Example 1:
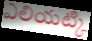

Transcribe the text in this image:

ఎలియట్కి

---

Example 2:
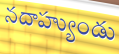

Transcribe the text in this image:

నదాహ్యుండు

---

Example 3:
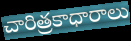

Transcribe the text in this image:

చారిత్రకాధారాలు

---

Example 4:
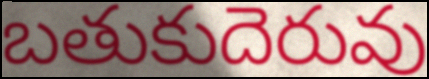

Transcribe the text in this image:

బతుకుదెరువు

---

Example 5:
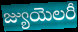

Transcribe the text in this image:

జ్యుయెలరీ